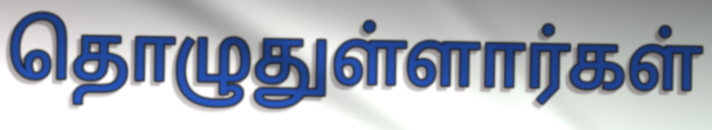
தொழுதுள்ளார்கள்